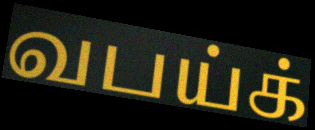
வபய்க்